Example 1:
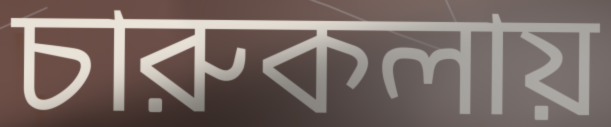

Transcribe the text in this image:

চারুকলায়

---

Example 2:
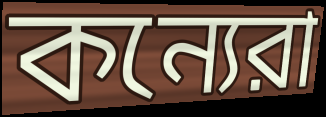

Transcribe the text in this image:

কন্যেরা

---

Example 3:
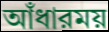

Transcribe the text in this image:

আঁধারময়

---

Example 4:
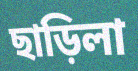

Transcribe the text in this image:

ছাড়িলা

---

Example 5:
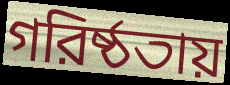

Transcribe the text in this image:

গরিষ্ঠতায়